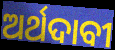
ଅର୍ଥଦାବୀ